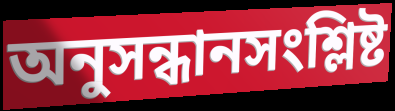
অনুসন্ধানসংশ্লিষ্ট